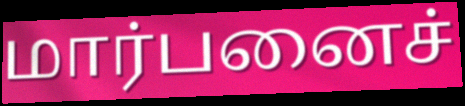
மார்பனைச்